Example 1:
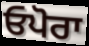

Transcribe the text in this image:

ਓਪੋਰਾ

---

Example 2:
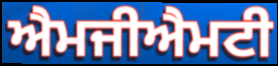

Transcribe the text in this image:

ਐਮਜੀਐਮਟੀ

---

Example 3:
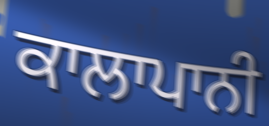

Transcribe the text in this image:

ਕਾਲਾਪਾਨੀ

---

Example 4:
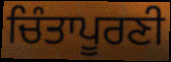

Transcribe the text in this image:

ਚਿੰਤਾਪੂਰਣੀ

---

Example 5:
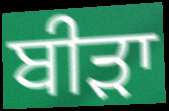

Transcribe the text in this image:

ਬੀੜਾ